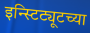
इन्स्टिट्यूटच्या